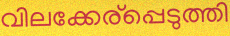
വിലക്കേര്പ്പെടുത്തി